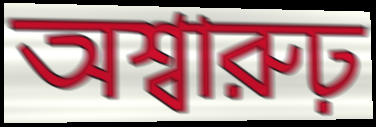
অশ্বারুঢ়